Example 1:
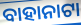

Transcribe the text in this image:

ବାହାନାଟା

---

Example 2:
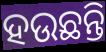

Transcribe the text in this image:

ହଉଛନ୍ତି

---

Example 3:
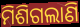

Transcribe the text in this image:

ମିଶିଗଲାଣି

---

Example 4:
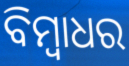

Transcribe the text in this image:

ବିମ୍ବାଧର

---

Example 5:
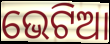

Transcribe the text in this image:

ଭେଟିଆ